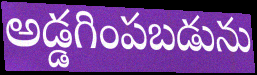
అడ్డగింపబడును